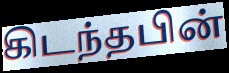
கிடந்தபின்